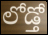
లోడ్తో